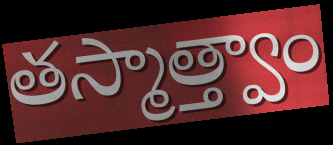
తస్మాత్త్వాం